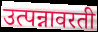
उत्पन्नावरती